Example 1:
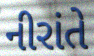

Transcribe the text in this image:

નીરાંતે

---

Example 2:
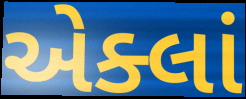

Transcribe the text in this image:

એક્લાં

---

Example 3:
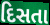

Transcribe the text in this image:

દિસતા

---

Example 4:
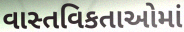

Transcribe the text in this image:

વાસ્તવિકતાઓમાં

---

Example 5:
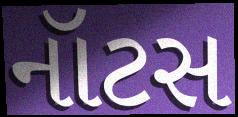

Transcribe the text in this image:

નૉટસ